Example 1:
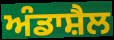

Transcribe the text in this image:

ਅੰਡਾਸ਼ੈਲ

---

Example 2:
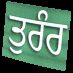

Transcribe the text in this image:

ਤੁਰੰਰ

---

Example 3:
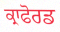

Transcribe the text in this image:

ਕ੍ਰਾਫੋਰਡ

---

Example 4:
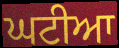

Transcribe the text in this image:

ਘਟੀਆ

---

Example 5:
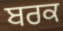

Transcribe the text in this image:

ਬਰਕ